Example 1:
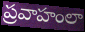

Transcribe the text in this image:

ప్రవాహంలా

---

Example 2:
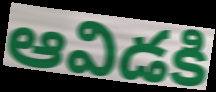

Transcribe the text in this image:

ఆవిడకి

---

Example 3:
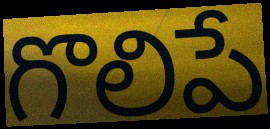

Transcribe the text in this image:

గొలిపే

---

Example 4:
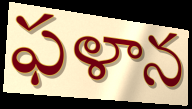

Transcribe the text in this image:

ఫళాన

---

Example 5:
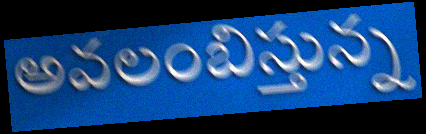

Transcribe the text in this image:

అవలంబిస్తున్న